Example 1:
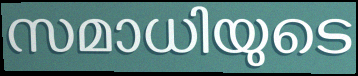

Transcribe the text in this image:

സമാധിയുടെ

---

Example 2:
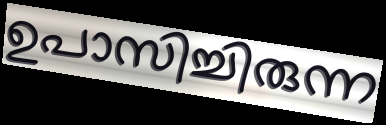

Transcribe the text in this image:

ഉപാസിച്ചിരുന്ന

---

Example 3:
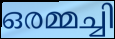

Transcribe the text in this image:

ഒരമ്മച്ചി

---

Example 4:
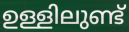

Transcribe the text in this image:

ഉള്ളിലുണ്ട്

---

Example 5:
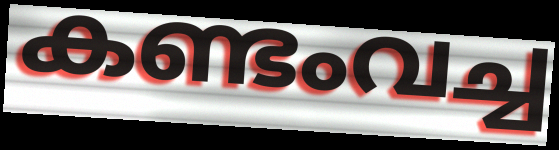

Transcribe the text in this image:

കണ്ടംവച്ച